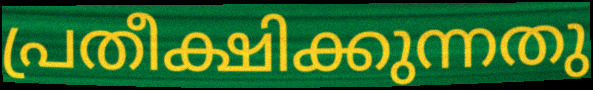
പ്രതീക്ഷിക്കുന്നതു